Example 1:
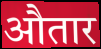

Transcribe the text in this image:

औतार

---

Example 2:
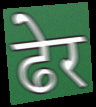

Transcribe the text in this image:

ढेर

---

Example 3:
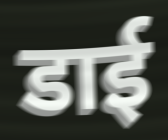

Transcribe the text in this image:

डाई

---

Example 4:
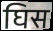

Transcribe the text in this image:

घिस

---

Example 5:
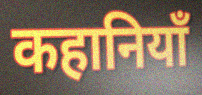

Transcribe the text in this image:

कहानियाँ